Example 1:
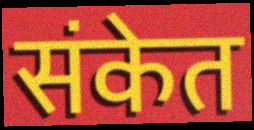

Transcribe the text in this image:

संकेत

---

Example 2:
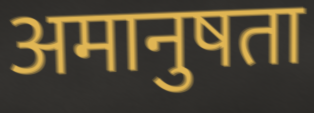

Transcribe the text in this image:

अमानुषता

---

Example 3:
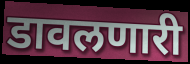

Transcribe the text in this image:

डावलणारी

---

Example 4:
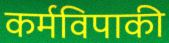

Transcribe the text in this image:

कर्मविपाकी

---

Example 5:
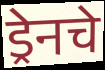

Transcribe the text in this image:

ड्रेनचे